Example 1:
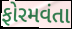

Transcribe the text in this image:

ફોરમવંતા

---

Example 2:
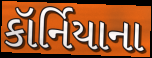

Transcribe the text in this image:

કૉર્નિયાના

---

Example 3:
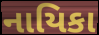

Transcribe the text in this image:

નાયિકા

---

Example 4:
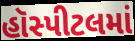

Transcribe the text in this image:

હૉસ્પીટલમાં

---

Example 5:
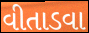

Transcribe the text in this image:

વીતાડવા